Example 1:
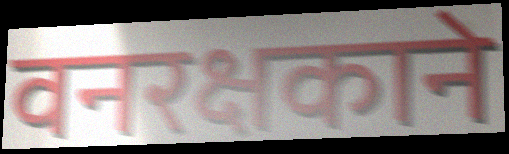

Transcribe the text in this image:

वनरक्षकाने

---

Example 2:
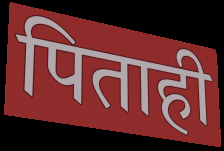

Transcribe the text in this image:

पिताही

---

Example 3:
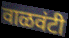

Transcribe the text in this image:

वाळवंटी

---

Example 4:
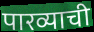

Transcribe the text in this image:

पारव्याची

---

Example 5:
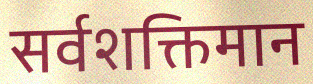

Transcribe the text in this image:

सर्वशक्तिमान